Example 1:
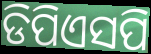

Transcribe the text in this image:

ଡିପିଏସପି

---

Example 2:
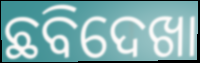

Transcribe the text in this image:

ଛବିଦେଖା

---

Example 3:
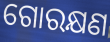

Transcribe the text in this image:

ଗୋରକ୍ଷଣ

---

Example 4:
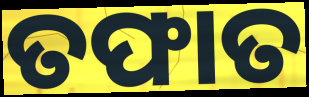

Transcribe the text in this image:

ତଫାତ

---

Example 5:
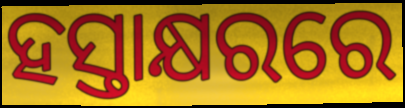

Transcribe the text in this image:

ହସ୍ତାକ୍ଷରରେ